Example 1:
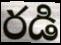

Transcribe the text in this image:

రడి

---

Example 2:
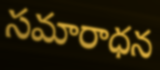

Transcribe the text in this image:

సమారాధన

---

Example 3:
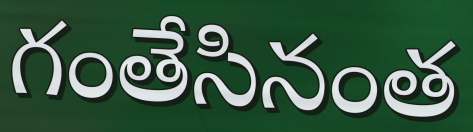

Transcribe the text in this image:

గంతేసినంత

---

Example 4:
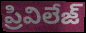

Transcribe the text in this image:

ప్రివిలేజ్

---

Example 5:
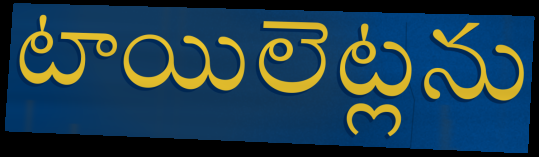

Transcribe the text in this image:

టాయిలెట్లను